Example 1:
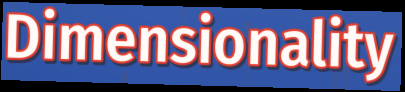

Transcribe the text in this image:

Dimensionality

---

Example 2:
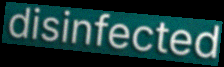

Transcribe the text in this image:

disinfected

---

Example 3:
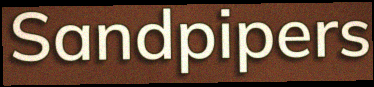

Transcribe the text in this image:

Sandpipers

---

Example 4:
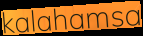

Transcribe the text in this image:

kalahamsa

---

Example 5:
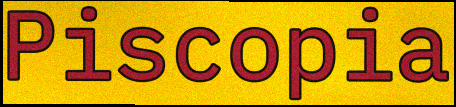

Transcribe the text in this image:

Piscopia